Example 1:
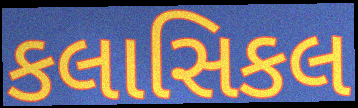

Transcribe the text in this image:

કલાસિકલ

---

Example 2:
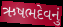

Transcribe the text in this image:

ઋષભદેવનું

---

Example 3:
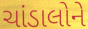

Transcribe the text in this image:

ચાંડાલોને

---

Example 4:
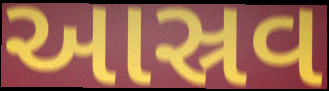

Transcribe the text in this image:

આસ્રવ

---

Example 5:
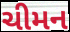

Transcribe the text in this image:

ચીમન